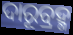
ଦାରୂବ୍ରହ୍ମ